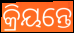
କ୍ରିୟନ୍ତେ